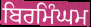
ਬਿਰਮਿੰਘਮ